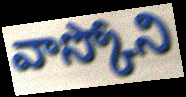
వాస్కోని